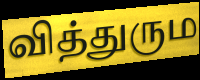
வித்துரும